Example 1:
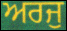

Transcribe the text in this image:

ਅਰਜੁ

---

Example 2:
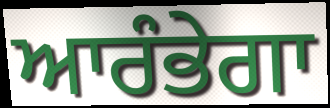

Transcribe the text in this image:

ਆਰੰਭੇਗਾ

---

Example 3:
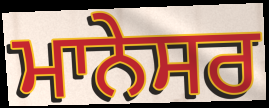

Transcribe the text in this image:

ਮਾਨੇਸਰ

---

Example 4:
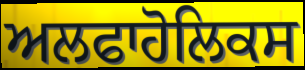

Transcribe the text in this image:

ਅਲਫਾਹੋਲਿਕਸ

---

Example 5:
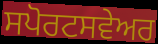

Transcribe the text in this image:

ਸਪੋਰਟਸਵੇਅਰ